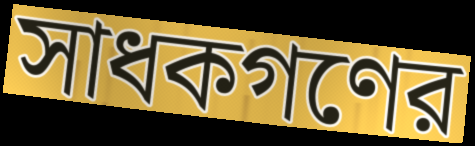
সাধকগণের